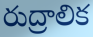
రుద్రాలిక